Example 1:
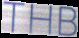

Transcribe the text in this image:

THB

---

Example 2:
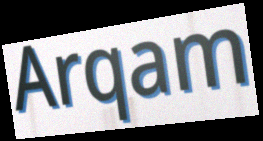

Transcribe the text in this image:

Arqam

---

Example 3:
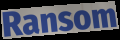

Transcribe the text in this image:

Ransom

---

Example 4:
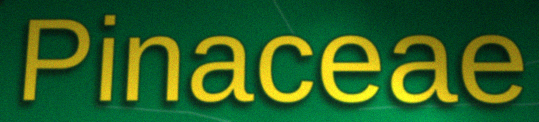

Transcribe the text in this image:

Pinaceae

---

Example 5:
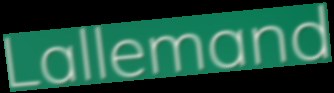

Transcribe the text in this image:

Lallemand